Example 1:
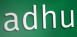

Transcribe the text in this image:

adhu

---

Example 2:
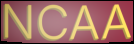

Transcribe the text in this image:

NCAA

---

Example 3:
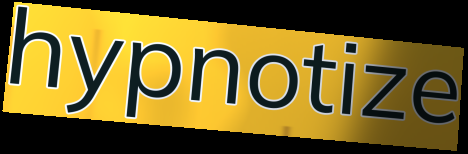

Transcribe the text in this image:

hypnotize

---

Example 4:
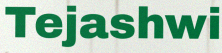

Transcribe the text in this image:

Tejashwi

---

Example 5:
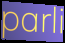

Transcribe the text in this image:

parli